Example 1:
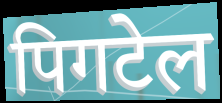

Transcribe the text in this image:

पिगटेल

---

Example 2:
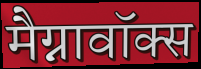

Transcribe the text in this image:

मैग्नावॉक्स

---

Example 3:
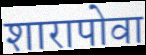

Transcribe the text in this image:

शारापोवा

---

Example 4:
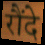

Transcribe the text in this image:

रौंदे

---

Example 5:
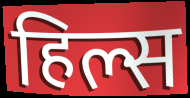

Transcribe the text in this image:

हिल्स